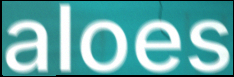
aloes